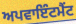
ਅਪਵਾਇੰਟਮੈਂਟ